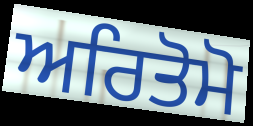
ਅਰਿਤੋਮੋ